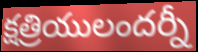
క్షత్రియులందర్నీ